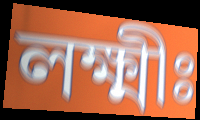
লক্ষ্মীঃ